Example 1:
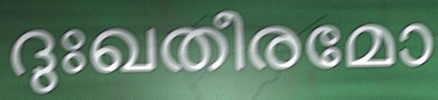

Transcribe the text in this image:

ദുഃഖതീരമോ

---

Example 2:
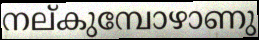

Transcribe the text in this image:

നല്കുമ്പോഴാണു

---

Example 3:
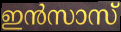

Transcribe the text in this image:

ഇൻസാസ്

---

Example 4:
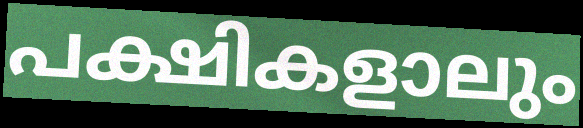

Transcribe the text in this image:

പക്ഷികളാലും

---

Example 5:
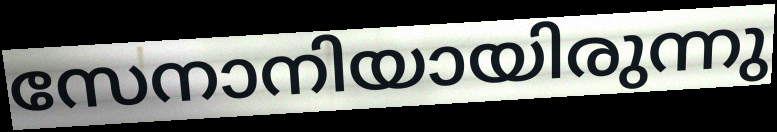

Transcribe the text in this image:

സേനാനിയായിരുന്നു